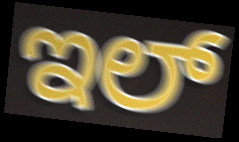
ಇಲ್